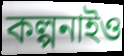
কল্পনাইও